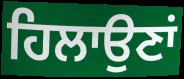
ਹਿਲਾਉਣਾਂ